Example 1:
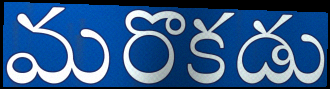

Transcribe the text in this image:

మరొకడు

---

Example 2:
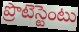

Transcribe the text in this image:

ప్రొటెస్టెంటు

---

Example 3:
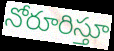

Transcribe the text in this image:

నోరూరిస్తూ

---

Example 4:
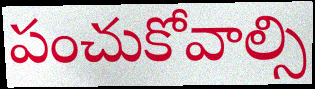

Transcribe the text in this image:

పంచుకోవాల్సి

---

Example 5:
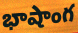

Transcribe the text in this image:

భాషాంగ